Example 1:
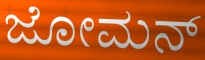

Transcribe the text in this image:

ಜೋಮನ್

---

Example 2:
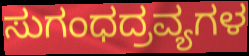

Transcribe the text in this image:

ಸುಗಂಧದ್ರವ್ಯಗಳ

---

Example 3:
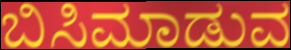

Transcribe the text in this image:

ಬಿಸಿಮಾಡುವ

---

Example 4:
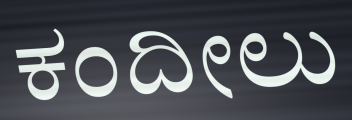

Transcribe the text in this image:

ಕಂದೀಲು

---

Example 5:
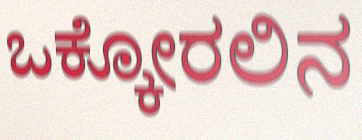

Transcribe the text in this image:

ಒಕ್ಕೋರಲಿನ